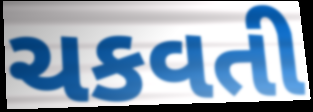
ચકવતી